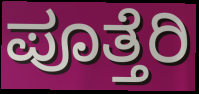
ಪೂತ್ತೆರಿ